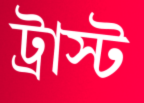
ট্রাস্ট